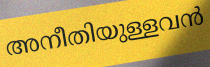
അനീതിയുള്ളവൻ